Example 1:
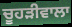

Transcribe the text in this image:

ਚੂਹੜੀਵਾਲਾ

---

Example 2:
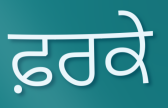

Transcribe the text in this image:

ਫ਼ਰਕੇ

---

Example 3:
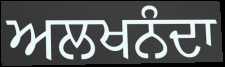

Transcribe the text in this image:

ਅਲਖਨੰਦਾ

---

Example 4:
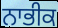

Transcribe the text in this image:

ਨਾਭੀਕ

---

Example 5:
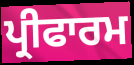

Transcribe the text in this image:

ਪ੍ਰੀਫਾਰਮ